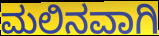
ಮಲಿನವಾಗಿ